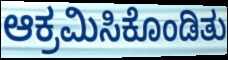
ಆಕ್ರಮಿಸಿಕೊಂಡಿತು